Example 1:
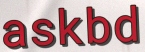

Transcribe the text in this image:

askbd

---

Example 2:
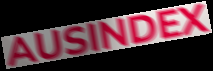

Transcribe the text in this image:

AUSINDEX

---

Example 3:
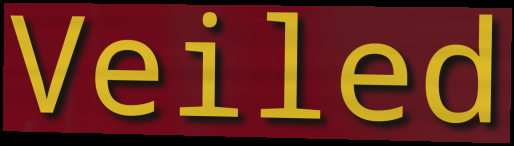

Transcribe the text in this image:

Veiled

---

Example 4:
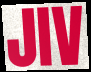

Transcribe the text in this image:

JIV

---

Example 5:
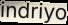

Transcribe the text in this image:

indriyo